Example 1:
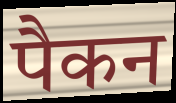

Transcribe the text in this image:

पैकन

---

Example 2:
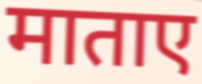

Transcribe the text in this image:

माताए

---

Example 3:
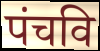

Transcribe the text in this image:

पंचवि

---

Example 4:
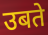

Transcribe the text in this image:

उबते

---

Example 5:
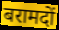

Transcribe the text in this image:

बरामदों